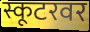
स्कूटरवर